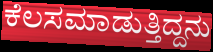
ಕೆಲಸಮಾಡುತ್ತಿದ್ದನು